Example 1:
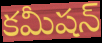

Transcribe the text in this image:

కమీషన్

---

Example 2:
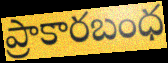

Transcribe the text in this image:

ప్రాకారబంధ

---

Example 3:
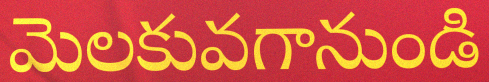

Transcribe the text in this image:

మెలకువగానుండి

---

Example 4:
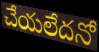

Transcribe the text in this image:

చేయలేదనో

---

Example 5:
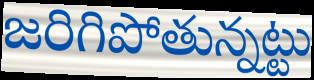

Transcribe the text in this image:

జరిగిపోతున్నట్టు